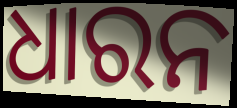
ଧାରନ